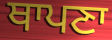
ਥਾਪਣਾ